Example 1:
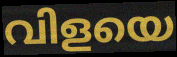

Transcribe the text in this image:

വിളയെ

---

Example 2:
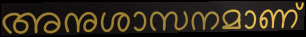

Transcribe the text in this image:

അനുശാസനമാണ്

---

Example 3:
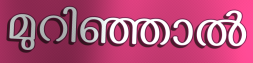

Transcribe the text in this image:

മുറിഞ്ഞാൽ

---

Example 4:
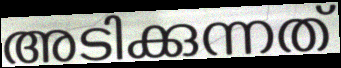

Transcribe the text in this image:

അടിക്കുന്നത്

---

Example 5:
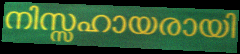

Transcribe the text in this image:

നിസ്സഹായരായി